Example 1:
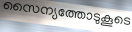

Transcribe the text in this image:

സൈന്യത്തോടുകൂടെ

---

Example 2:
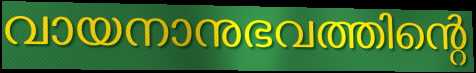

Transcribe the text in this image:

വായനാനുഭവത്തിന്റെ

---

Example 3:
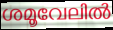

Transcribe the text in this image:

ശമൂവേലിൽ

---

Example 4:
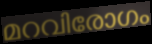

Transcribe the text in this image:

മറവിരോഗം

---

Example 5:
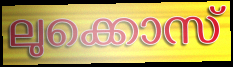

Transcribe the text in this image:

ലുക്കൊസ്